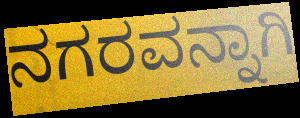
ನಗರವನ್ನಾಗಿ